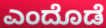
ಎಂದೊಡೆ